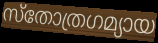
സ്തോത്രഗമ്യായ